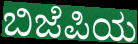
ಬಿಜೆಪಿಯ